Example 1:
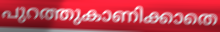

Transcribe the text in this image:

പുറത്തുകാണിക്കാതെ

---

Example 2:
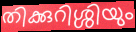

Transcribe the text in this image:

തിക്കുറിശ്ശിയും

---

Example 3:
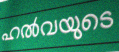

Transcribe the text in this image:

ഹൽവയുടെ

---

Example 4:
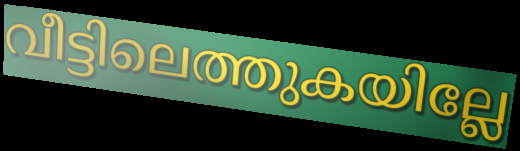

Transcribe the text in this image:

വീട്ടിലെത്തുകയില്ലേ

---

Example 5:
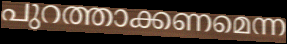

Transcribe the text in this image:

പുറത്താക്കണമെന്ന